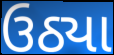
ઉઠ્યા